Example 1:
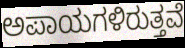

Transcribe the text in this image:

ಅಪಾಯಗಳಿರುತ್ತವೆ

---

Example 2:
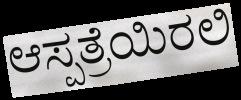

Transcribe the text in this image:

ಆಸ್ಪತ್ರೆಯಿರಲಿ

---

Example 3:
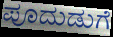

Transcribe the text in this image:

ಪೂದುಡುಗೆ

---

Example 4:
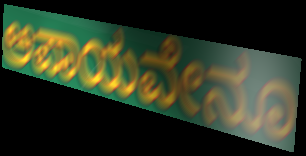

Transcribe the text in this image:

ಅಪಾಯವೇನೂ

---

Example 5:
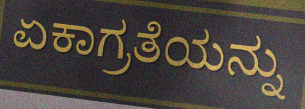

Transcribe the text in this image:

ಏಕಾಗ್ರತೆಯನ್ನು